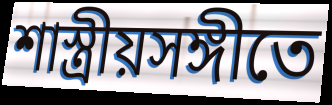
শাস্ত্রীয়সঙ্গীতে